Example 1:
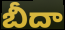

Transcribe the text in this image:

బీదా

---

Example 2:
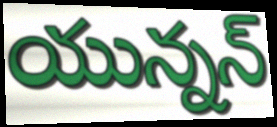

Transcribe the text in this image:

యున్నన్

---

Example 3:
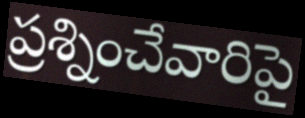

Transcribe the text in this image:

ప్రశ్నించేవారిపై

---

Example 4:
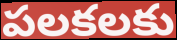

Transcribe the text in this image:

పలకలకు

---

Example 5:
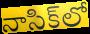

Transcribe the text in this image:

నాసిక్‌లో